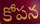
కోపన